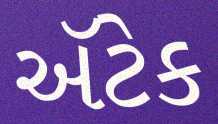
ઍટેક